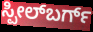
ಸ್ಪೀಲ್‌ಬರ್ಗ್